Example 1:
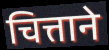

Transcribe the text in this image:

चित्ताने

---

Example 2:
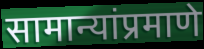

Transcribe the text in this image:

सामान्यांप्रमाणे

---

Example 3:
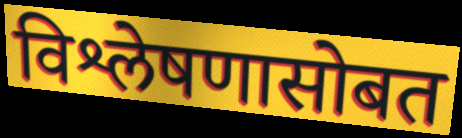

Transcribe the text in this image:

विश्लेषणासोबत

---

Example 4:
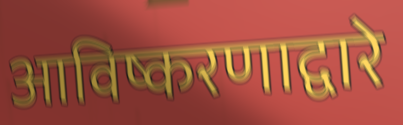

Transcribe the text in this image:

आविष्करणाद्वारे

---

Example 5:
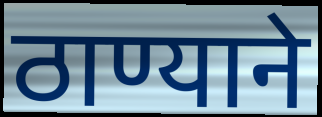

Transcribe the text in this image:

ठाण्याने